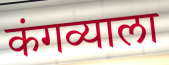
कंगव्याला